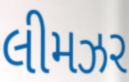
લીમઝર